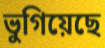
ভুগিয়েছে